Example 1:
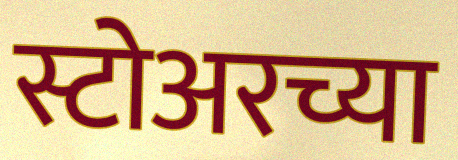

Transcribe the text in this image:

स्टोअरच्या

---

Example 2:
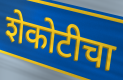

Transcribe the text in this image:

शेकोटीचा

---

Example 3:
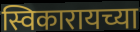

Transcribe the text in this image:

स्विकारायच्या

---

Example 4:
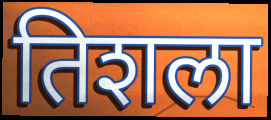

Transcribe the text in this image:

तिशला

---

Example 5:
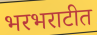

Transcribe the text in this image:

भरभराटीत